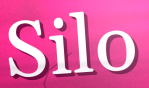
Silo